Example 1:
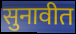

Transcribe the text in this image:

सुनावीत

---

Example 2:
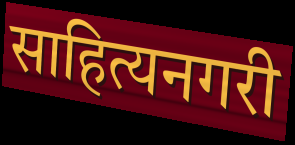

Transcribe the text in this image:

साहित्यनगरी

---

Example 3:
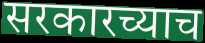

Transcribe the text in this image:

सरकारच्याच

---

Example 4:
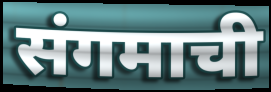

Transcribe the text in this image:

संगमाची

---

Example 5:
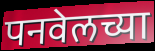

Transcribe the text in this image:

पनवेलच्या